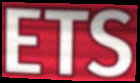
ETS